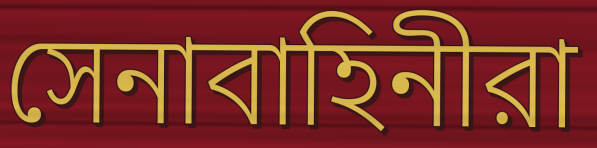
সেনাবাহিনীরা